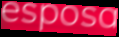
esposa